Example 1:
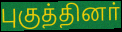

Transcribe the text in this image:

புகுத்தினர்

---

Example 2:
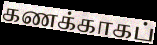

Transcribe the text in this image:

கணக்காகப்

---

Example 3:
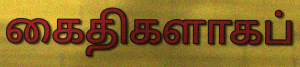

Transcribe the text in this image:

கைதிகளாகப்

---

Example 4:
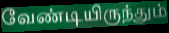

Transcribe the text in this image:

வேண்டியிருந்தும்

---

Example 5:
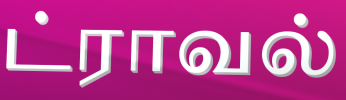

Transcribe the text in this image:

ட்ராவல்